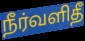
நீர்வளிதீ